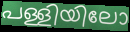
പള്ളിയിലോ